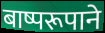
बाष्परूपाने